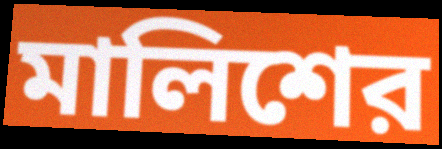
মালিশের